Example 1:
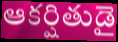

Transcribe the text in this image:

ఆకర్షితుడై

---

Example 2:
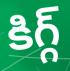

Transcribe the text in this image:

కిగ్గ్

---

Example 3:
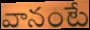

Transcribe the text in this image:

వానంటే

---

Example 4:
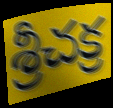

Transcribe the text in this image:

శ్రీచక్ర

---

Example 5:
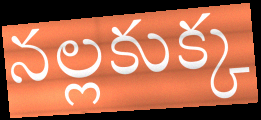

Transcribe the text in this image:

నల్లకుక్క